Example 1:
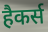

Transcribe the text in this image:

हैकर्स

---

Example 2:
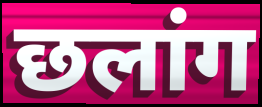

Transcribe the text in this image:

छलांग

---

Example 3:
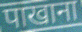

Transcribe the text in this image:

पाखाना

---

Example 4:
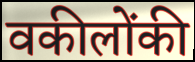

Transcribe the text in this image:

वकीलोंकी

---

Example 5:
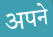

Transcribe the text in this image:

अपने